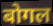
बोगल